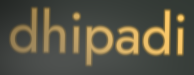
dhipadi